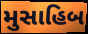
મુસાહિબ